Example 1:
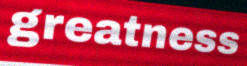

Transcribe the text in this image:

greatness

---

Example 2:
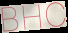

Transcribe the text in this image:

BHC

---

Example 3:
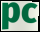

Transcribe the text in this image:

pc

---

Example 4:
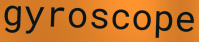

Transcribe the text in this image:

gyroscope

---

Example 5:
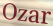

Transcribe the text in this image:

Ozar